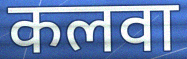
कलवा